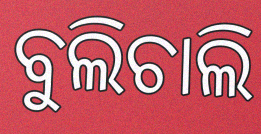
ବୁଲିଚାଲି